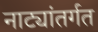
नाट्यांतर्गत